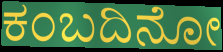
ಕಂಬದಿನೋ